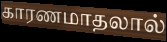
காரணமாதலால்